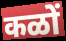
कळों